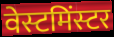
वेस्‍टमिंस्‍टर